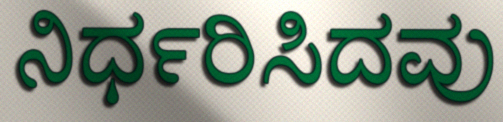
ನಿರ್ಧರಿಸಿದವು